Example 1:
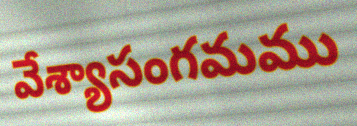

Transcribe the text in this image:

వేశ్యాసంగమము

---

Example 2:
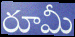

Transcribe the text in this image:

రూమీ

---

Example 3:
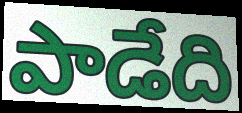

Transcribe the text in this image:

పాడేది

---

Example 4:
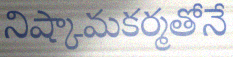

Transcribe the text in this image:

నిష్కామకర్మతోనే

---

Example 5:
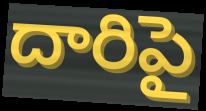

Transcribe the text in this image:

దారిపై